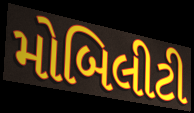
મોબિલીટી